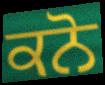
ਕਨੋ